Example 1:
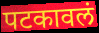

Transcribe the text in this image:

पटकावलं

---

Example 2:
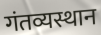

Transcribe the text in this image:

गंतव्यस्थान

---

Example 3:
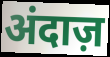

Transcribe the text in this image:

अंदाज़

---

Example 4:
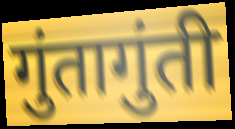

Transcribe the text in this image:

गुंतागुंती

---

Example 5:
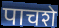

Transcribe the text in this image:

पाचशे